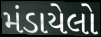
મંડાયેલો